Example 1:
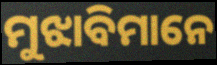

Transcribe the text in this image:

ମୁଝାବିମାନେ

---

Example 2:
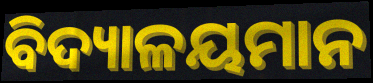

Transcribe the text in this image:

ବିଦ୍ୟାଳୟମାନ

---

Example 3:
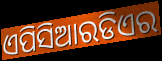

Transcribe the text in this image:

ଏପିସିଆରଡିଏର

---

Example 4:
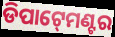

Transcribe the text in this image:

ଡିପାଟ୍‍ମେଣ୍ଟର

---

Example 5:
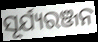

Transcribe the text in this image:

ସୂର୍ଯ୍ୟରଞ୍ଜନ